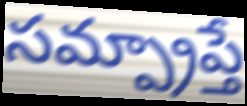
సమ్ప్రాప్తే